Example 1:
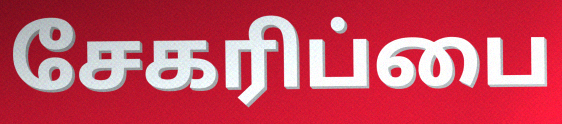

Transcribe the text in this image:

சேகரிப்பை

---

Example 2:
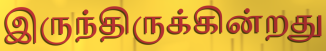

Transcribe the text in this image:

இருந்திருக்கின்றது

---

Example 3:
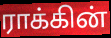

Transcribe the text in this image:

ராக்கின்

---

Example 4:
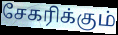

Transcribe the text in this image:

சேகரிக்கும்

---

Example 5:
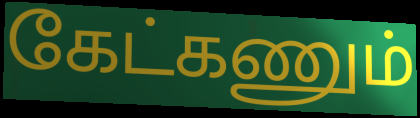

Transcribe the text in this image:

கேட்கணும்